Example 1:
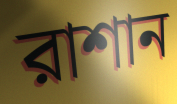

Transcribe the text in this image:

রাশান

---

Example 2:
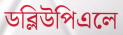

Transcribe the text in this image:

ডব্লিউপিএলে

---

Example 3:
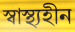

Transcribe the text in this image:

স্বাস্থ্যহীন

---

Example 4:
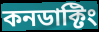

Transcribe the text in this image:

কনডাক্টিং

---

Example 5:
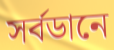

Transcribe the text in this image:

সর্বডানে